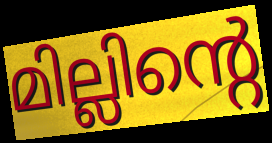
മില്ലിന്റെ